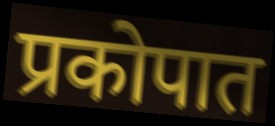
प्रकोपात